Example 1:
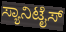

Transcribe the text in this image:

ಸ್ಯಾನಿಟೈಸ್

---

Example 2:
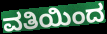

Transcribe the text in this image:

ವತಿಯಿಂದ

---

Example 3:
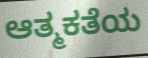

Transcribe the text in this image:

ಆತ್ಮಕತೆಯ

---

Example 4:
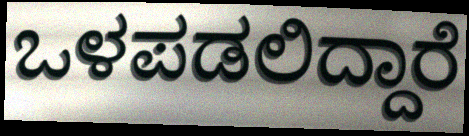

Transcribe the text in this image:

ಒಳಪಡಲಿದ್ದಾರೆ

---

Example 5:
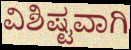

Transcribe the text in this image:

ವಿಶಿಷ್ಟವಾಗಿ